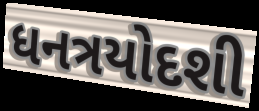
ધનત્રયોદશી